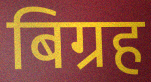
बिग्रह